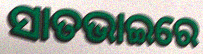
ସାତଭାଇରେ